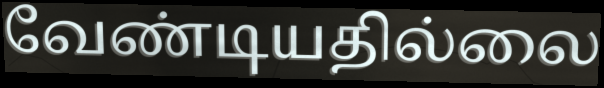
வேண்டியதில்லை